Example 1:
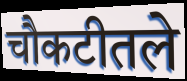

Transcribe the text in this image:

चौकटीतले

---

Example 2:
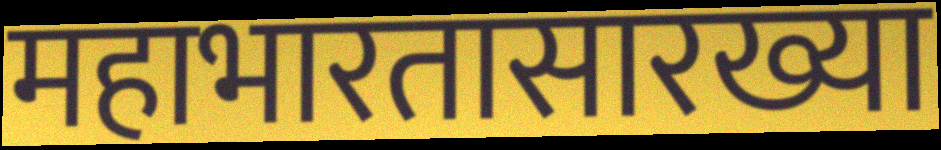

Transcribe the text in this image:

महाभारतासारख्या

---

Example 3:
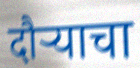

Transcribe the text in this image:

दौऱ्याचा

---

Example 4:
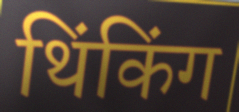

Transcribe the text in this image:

थिंकिंग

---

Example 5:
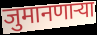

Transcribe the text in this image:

जुमानणार्‍या